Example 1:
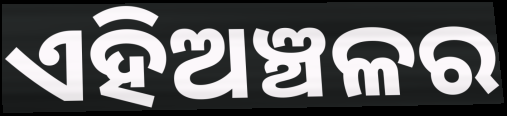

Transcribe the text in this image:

ଏହିଅଞ୍ଚଳର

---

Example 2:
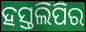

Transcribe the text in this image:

ହସ୍ତଲିପିର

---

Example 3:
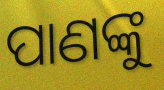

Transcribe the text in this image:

ପାଣଙ୍କୁ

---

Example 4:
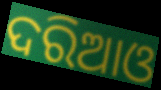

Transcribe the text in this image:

ଦରିଆଓ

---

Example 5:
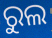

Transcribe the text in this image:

ରୁଲ